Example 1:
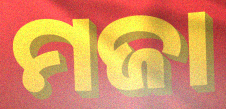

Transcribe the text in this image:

ମଜା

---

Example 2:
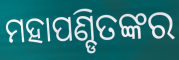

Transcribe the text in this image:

ମହାପଣ୍ଡିତଙ୍କର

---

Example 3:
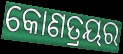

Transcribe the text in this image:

କୋଣତ୍ରୟର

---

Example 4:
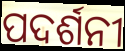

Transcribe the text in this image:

ପଦର୍ଶନୀ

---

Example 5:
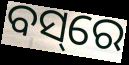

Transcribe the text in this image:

ବସ୍‌ରେ